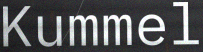
Kummel